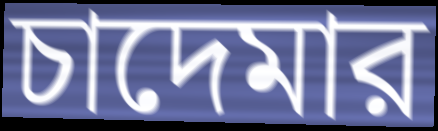
চাদেমার